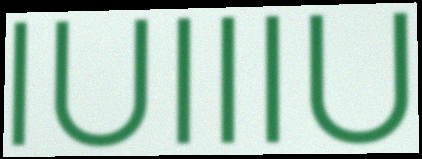
IUIIIU